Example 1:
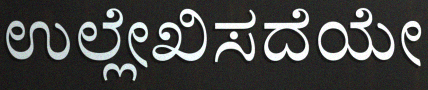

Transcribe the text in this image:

ಉಲ್ಲೇಖಿಸದೆಯೇ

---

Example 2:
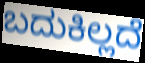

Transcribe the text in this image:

ಬದುಕಿಲ್ಲದೆ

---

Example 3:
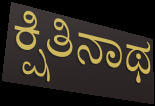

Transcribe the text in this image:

ಕ್ಷಿತಿನಾಥ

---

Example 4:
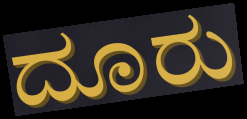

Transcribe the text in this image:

ದೂರು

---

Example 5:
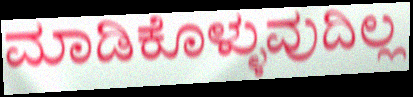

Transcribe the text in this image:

ಮಾಡಿಕೊಳ್ಳುವುದಿಲ್ಲ